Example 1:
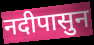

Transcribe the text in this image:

नदीपासुन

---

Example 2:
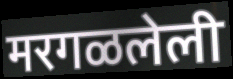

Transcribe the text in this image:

मरगळलेली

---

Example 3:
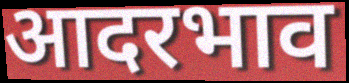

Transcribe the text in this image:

आदरभाव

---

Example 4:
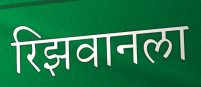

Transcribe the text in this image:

रिझवानला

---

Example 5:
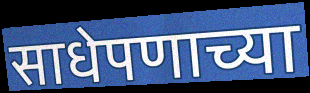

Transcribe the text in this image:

साधेपणाच्या